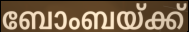
ബോംബയ്ക്ക്